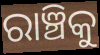
ରାଞ୍ଚିକୁ